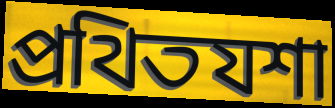
প্রথিতযশা